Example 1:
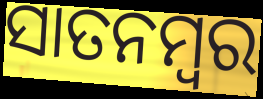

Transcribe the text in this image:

ସାତନମ୍ବର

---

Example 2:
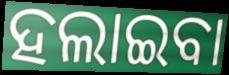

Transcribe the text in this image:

ହଲାଇବା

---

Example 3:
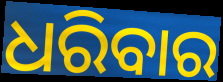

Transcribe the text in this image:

ଧରିବାର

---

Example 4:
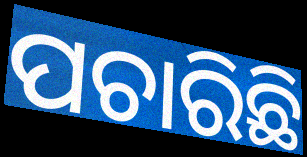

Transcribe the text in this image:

ପଚାରିଛି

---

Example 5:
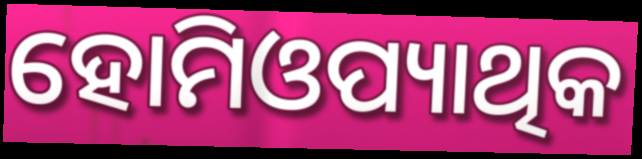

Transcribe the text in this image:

ହୋମିଓପ୍ୟାଥିକ